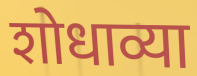
शोधाव्या